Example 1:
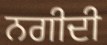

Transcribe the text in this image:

ਨਗੀਦੀ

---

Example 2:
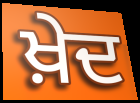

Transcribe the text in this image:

ਖ਼ੇਦ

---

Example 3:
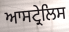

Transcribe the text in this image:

ਆਸਟ੍ਰੇਲਿਸ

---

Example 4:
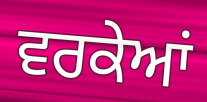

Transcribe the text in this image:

ਵਰਕੇਆਂ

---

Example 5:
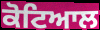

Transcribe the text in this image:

ਕੋਟਿਆਲ